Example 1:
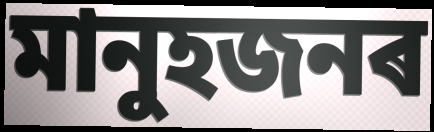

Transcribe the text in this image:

মানুহজনৰ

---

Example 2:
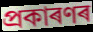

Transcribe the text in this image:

প্ৰকাৰণৰ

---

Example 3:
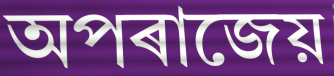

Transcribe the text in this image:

অপৰাজেয়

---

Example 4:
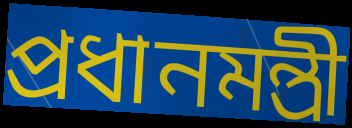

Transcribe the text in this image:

প্ৰধানমন্ত্ৰী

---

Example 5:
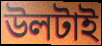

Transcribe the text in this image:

উলটাই